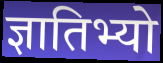
ज्ञातिभ्यो